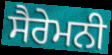
ਸੈਰੇਮਨੀ